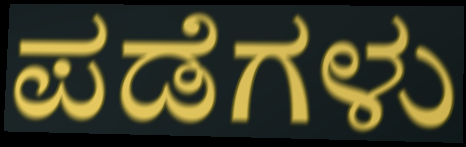
ಪಡೆಗಳು